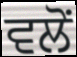
ਵਲੋੰ